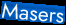
Masers